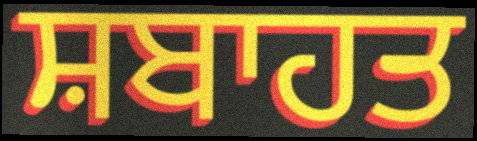
ਸ਼ਬਾਹਤ